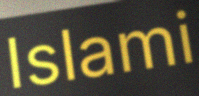
Islami